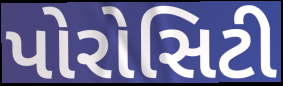
પોરોસિટી